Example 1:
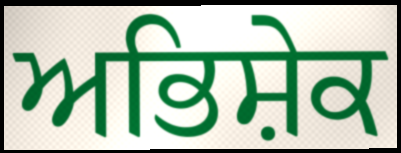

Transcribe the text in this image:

ਅਭਿਸ਼ੇਕ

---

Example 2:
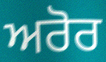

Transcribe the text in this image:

ਅਰੋਰ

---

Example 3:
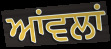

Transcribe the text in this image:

ਆਂਵਲਾਂ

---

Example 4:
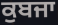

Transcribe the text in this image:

ਕੁਬਜਾ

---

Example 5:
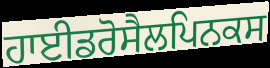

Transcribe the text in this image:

ਹਾਈਡਰੋਸੈਲਪਿਨਕਸ